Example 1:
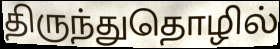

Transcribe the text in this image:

திருந்துதொழில்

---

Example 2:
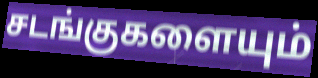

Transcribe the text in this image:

சடங்குகளையும்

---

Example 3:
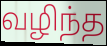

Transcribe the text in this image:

வழிந்த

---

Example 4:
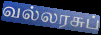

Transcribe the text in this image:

வல்லரசுப்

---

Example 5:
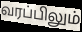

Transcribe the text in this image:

வரப்பிலும்